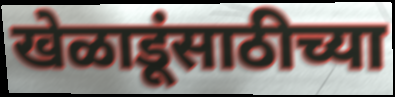
खेळाडूंसाठीच्या